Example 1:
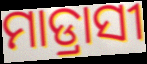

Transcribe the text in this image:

ମାଡ୍ରାସୀ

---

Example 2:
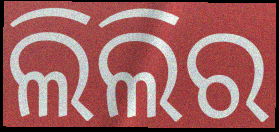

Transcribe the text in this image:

ଲିଲିର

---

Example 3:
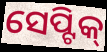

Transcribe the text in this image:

ସେପ୍ଟିକ୍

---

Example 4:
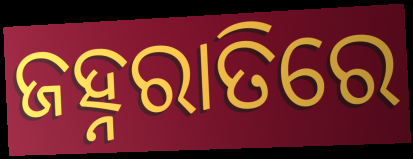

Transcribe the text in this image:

ଜହ୍ନରାତିରେ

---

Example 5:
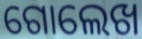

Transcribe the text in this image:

ଗୋଲେଖ